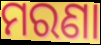
ମରଣା